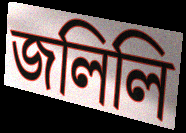
জলিলি